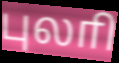
புலரி